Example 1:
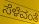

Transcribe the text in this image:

ಸೆಳೆವಂತೆ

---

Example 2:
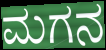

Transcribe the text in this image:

ಮಗನ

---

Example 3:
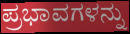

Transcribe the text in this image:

ಪ್ರಭಾವಗಳನ್ನು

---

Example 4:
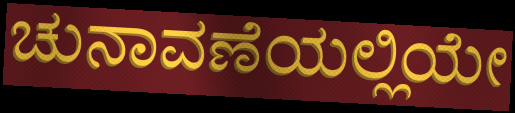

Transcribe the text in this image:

ಚುನಾವಣೆಯಲ್ಲಿಯೇ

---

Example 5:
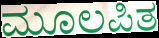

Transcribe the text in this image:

ಮೂಲಪಿತ